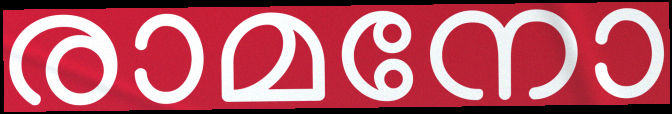
രാമനോ